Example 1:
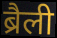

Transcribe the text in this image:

ब्रैली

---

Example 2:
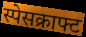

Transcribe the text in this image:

स्पेसक्राफ्ट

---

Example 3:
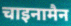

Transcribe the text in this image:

चाइनामैन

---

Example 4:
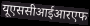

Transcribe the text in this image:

यूएससीआईआरएफ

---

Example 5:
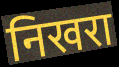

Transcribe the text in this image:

निखरा